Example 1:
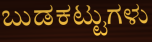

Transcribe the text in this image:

ಬುಡಕಟ್ಟುಗಳು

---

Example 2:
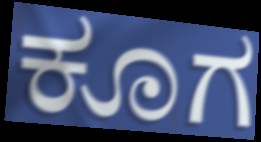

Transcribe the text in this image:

ಕೂಗ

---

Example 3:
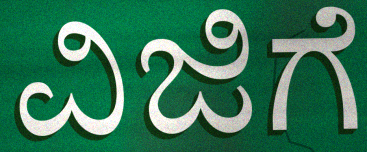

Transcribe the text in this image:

ವಿಜಿಗೆ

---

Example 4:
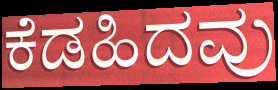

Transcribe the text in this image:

ಕೆಡಹಿದವು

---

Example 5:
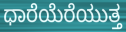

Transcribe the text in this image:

ಧಾರೆಯೆರೆಯುತ್ತ